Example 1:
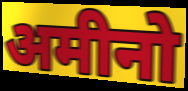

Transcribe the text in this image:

अमीनो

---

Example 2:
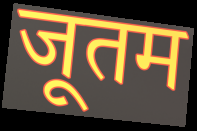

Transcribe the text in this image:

जूतम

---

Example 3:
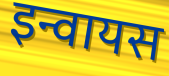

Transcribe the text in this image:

इन्वायस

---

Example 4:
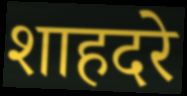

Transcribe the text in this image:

शाहदरे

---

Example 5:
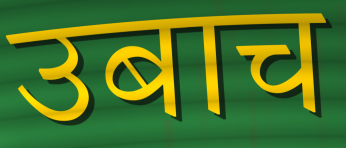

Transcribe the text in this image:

उबाच